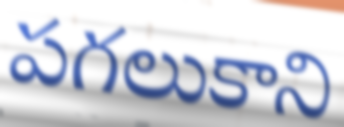
పగలుకాని